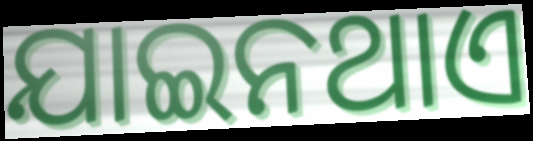
ଯାଇନଥାଏ